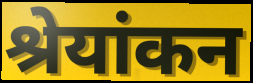
श्रेयांकन